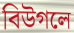
বিউগলে